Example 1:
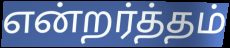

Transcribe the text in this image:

என்றர்த்தம்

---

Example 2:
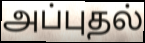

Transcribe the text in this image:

அப்புதல்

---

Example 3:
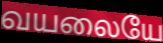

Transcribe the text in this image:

வயலையே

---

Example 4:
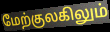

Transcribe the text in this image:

மேற்குலகிலும்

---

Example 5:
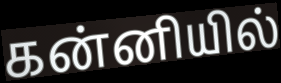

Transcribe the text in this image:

கன்னியில்